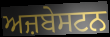
ਅਜ਼ਬੇਸਟਨ